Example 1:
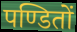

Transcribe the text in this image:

पण्डितों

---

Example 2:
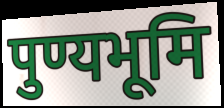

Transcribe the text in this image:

पुण्यभूमि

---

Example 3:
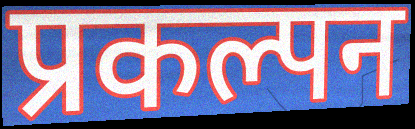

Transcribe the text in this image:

प्रकल्पन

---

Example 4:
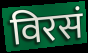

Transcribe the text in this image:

विरसं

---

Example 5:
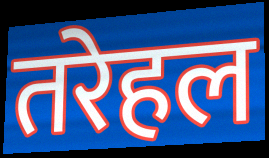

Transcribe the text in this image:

तरेहल